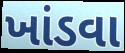
ખાંડવા